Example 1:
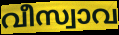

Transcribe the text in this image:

വീസ്വാവ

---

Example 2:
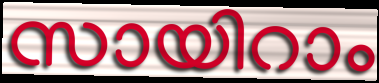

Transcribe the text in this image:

സായിറാം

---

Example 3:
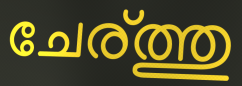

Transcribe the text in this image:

ചേര്ത്തു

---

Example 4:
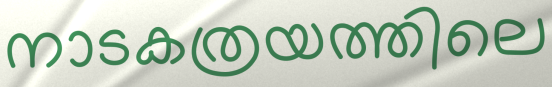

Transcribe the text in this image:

നാടകത്രയത്തിലെ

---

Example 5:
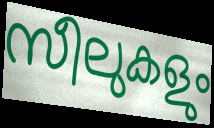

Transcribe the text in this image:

സീലുകളും